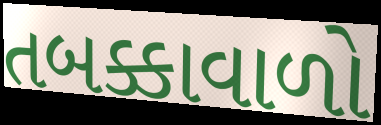
તબક્કાવાળો